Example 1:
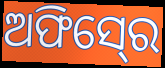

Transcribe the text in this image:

ଅଫିସ୍‍ରେ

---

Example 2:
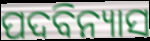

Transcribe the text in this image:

ପଦବିନ୍ୟାସ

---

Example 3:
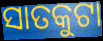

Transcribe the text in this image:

ସାତକୁଟା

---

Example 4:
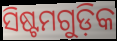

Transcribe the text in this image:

ସିଷ୍ଟମଗୁଡ଼ିକ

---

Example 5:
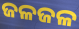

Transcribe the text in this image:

ଜଳଜଳ